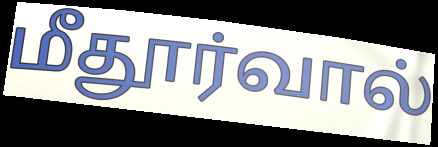
மீதூர்வால்